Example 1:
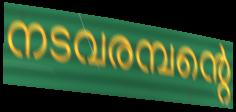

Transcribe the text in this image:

നടവരമ്പന്റെ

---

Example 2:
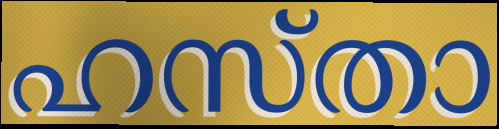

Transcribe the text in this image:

ഹസ്താ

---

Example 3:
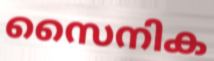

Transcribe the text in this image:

സൈനിക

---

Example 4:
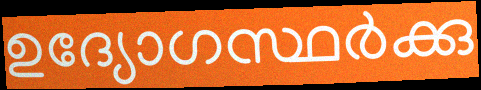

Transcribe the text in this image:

ഉദ്യോഗസ്ഥർക്കു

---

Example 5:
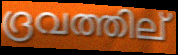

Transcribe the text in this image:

ദ്രവത്തില്